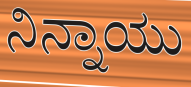
ನಿನ್ನಾಯು